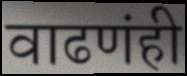
वाढणंही